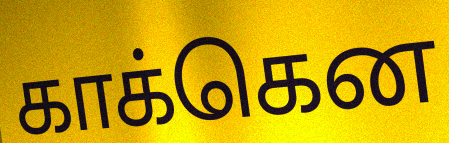
காக்கென